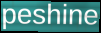
peshine